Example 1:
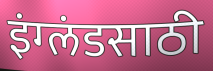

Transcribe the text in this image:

इंग्लंडसाठी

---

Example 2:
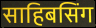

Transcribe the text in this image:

साहिबसिंग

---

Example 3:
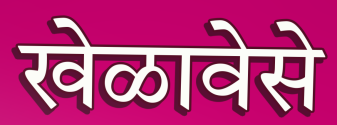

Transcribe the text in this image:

खेळावेसे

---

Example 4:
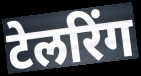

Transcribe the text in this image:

टेलरिंग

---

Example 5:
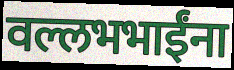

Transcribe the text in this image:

वल्लभभाईंना